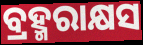
ବ୍ରହ୍ମରାକ୍ଷସ